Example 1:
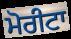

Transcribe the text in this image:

ਮੋਰੀਟਾ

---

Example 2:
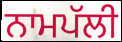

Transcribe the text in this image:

ਨਾਮਪੱਲੀ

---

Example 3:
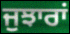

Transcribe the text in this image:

ਜੁਝਾਰਾਂ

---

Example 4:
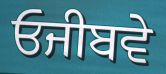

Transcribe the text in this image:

ਓਜੀਬਵੇ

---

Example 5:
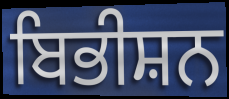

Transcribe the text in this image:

ਬਿਭੀਸ਼ਨ